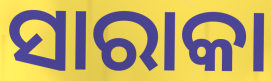
ସାରାକା